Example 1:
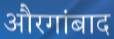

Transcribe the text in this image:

औरगांबाद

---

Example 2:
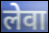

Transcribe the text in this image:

लेवा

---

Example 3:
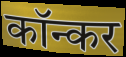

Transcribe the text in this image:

कॉन्कर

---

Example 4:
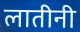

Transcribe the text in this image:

लातीनी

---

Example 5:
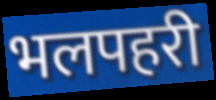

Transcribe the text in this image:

भलपहरी